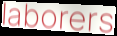
laborers